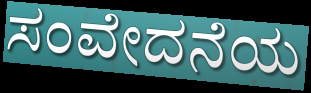
ಸಂವೇದನೆಯ